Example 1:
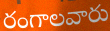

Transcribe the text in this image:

రంగాలవారు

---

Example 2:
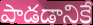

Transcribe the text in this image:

పాడడానికే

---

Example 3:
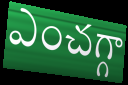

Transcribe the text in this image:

ఎంచగ్గా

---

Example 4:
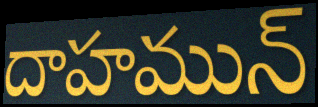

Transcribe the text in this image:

దాహమున్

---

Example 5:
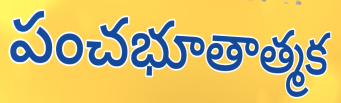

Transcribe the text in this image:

పంచభూతాత్మక